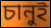
চানুই